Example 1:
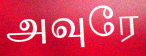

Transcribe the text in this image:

அவுரே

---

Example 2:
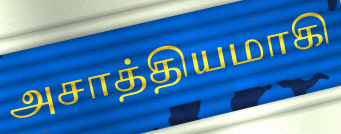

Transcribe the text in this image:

அசாத்தியமாகி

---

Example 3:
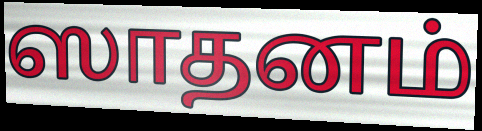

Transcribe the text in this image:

ஸாதனம்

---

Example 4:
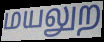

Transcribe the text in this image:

மயலுற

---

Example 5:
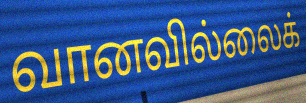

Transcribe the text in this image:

வானவில்லைக்